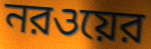
নরওয়ের